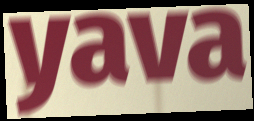
yava